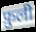
फ़ुली